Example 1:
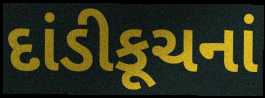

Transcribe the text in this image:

દાંડીકૂચનાં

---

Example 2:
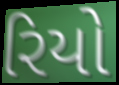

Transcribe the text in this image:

રિયો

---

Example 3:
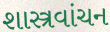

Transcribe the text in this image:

શાસ્ત્રવાંચન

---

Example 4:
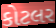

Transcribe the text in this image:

કોટલર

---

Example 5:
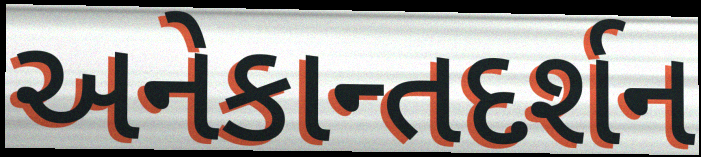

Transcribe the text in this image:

અનેકાન્તદર્શન